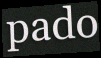
pado